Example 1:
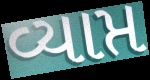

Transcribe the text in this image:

વ્યાપ્ત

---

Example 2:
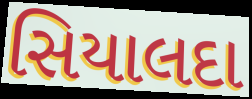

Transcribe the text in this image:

સિયાલદા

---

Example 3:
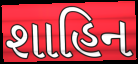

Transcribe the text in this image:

શાહિન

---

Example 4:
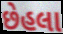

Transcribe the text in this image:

છેહલા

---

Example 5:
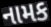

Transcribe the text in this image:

નામક